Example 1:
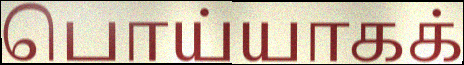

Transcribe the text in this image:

பொய்யாகக்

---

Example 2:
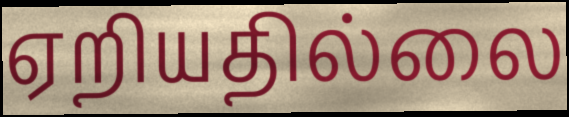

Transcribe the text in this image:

ஏறியதில்லை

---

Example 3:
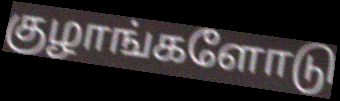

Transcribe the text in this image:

குழாங்களோடு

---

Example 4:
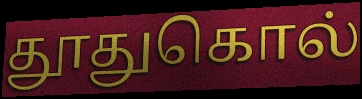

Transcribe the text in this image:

தூதுகொல்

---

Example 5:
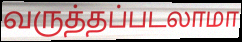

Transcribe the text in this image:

வருத்தப்படலாமா